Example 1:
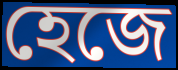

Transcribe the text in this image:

হেজে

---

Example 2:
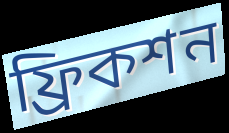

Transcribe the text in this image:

ফ্রিকশন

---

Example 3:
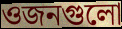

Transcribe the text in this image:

ওজনগুলো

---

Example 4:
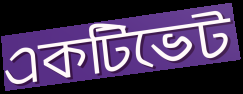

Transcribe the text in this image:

একটিভেট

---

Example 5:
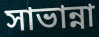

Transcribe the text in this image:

সাভান্না